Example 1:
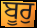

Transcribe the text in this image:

ਬੂਰੁ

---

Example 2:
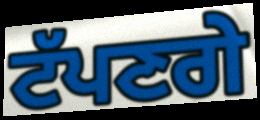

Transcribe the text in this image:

ਟੱਪਣਗੇ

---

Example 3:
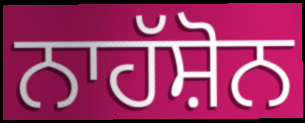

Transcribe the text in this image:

ਨਾਹੱਸ਼ੋਨ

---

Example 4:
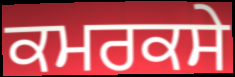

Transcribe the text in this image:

ਕਮਰਕਸੇ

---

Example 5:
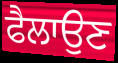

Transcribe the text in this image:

ਫੈਲਾਉਣ